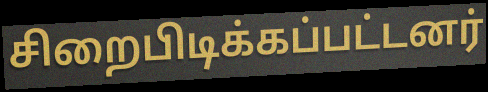
சிறைபிடிக்கப்பட்டனர்